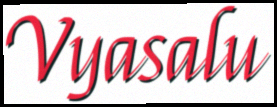
Vyasalu